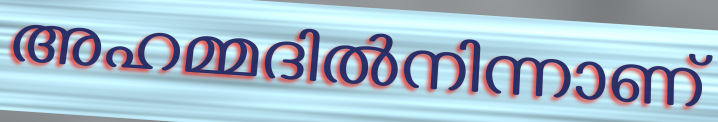
അഹമ്മദിൽനിന്നാണ്